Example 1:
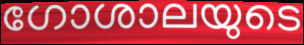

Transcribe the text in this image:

ഗോശാലയുടെ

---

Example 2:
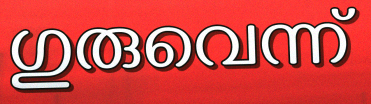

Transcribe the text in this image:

ഗുരുവെന്ന്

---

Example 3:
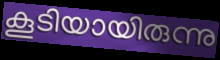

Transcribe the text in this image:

കൂടിയായിരുന്നു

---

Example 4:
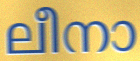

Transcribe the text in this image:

ലീനാ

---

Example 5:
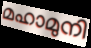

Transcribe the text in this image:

മഹാമുനി